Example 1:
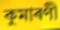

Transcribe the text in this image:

কুমাৰণী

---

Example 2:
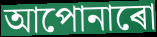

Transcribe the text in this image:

আপোনাৰো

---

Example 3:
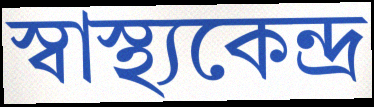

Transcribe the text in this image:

স্বাস্থ্যকেন্দ্ৰ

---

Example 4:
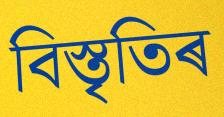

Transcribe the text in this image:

বিস্তৃতিৰ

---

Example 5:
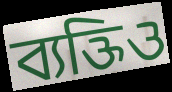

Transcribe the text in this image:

ব্যক্তিও